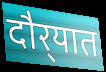
दौर्‍यात